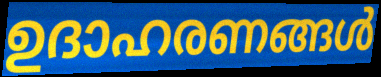
ഉദാഹരണങ്ങൾ